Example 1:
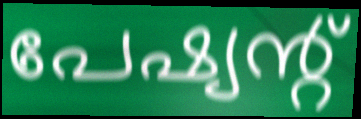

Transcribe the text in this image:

പേഷ്യന്റ്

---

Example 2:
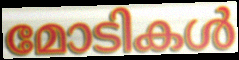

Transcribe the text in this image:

മോടികൾ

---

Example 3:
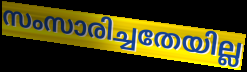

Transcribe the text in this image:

സംസാരിച്ചതേയില്ല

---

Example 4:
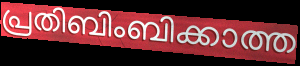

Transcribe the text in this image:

പ്രതിബിംബിക്കാത്ത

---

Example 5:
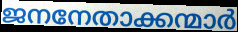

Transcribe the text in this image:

ജനനേതാക്കന്മാർ